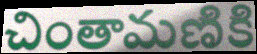
చింతామణికి